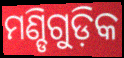
ମଣ୍ଡିଗୁଡ଼ିକ